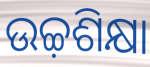
ଉଚ୍ଚ଼ଶିକ୍ଷା